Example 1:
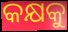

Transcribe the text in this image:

କକ୍ଷକୁ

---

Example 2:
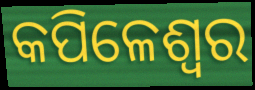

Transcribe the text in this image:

କପିଳେଶ୍ଵର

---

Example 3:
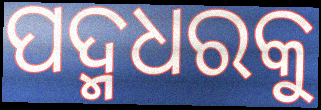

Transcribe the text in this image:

ପଦ୍ମଧରକୁ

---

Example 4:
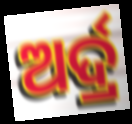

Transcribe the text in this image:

ଅର୍ଦ୍ର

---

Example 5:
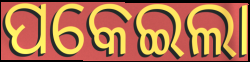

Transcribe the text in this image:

ପକେଇଲା